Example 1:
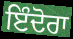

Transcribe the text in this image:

ਇੰਦੋਰਾ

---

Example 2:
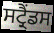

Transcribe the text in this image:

ਸਟ੍ਰੈਂਡਸ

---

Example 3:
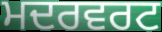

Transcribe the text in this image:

ਮਦਰਵਰਟ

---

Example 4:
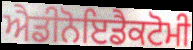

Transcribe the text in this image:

ਐਡੀਨੋਇਡੈਕਟੋਮੀ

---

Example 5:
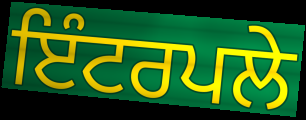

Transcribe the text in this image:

ਇੰਟਰਪਲੇ